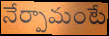
నేర్పామంటే